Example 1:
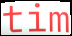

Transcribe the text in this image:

tim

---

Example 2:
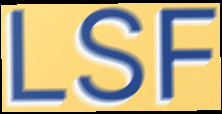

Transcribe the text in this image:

LSF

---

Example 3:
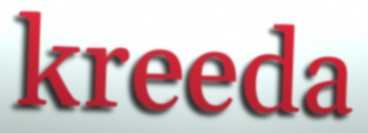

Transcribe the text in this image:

kreeda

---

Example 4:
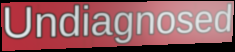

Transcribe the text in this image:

Undiagnosed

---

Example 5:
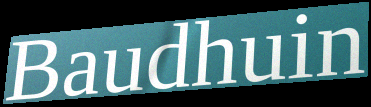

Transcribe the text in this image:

Baudhuin